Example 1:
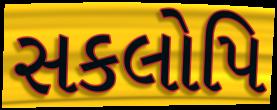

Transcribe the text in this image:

સકલોપિ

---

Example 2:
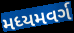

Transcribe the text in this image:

મધ્યમવર્ગ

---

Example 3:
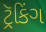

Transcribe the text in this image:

ટ્રૅકિંગ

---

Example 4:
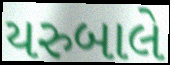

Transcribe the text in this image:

યરુબાલે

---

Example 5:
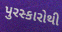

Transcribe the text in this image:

પુરસ્કારોથી